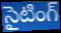
సైటింగ్